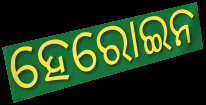
ହେରୋଇନ